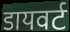
डायवर्ट